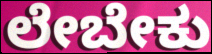
ಲೇಬೇಕು